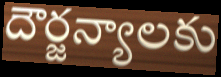
దౌర్జన్యాలకు